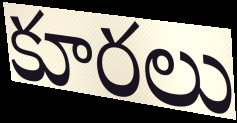
కూరలు